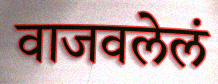
वाजवलेलं